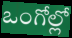
ఒంగోల్లో